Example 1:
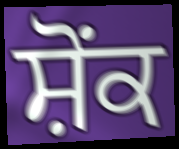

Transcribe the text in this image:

ਸ਼ੋਂਕ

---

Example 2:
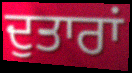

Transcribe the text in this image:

ਦੁਤਾਰਾਂ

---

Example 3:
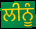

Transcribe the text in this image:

ਲੀਨੂੰ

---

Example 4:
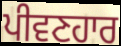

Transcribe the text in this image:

ਪੀਵਣਹਾਰ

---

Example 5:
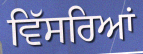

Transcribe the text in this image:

ਵਿੱਸਰਿਆਂ